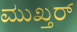
ಮುಖ್ತರ್